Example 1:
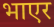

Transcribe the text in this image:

भाएर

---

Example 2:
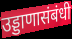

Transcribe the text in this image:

उड्डाणासंबंधी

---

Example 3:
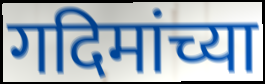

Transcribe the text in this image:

गदिमांच्या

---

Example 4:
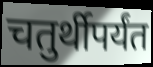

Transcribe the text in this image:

चतुर्थीपर्यंत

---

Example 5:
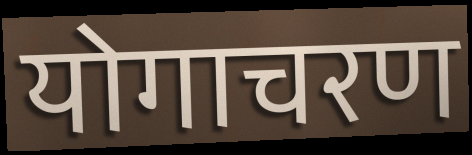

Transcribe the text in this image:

योगाचरण